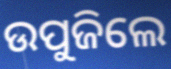
ଉପୁଜିଲେ